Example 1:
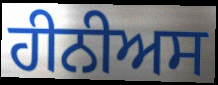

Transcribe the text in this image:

ਹੀਨੀਅਸ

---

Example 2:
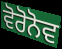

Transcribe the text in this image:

ਵੋਰੋਨੋਵ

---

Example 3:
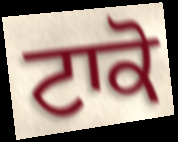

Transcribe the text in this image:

ਟਾਕੋ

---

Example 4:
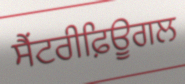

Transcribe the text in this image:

ਸੈਂਟਰੀਫ਼ਿਊਗਲ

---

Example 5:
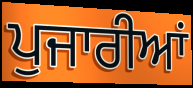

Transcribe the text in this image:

ਪੁਜਾਰੀਆਂ